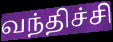
வந்திச்சி